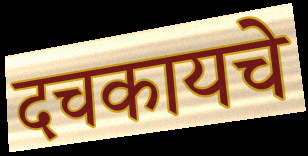
दचकायचे